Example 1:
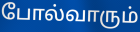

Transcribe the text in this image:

போல்வாரும்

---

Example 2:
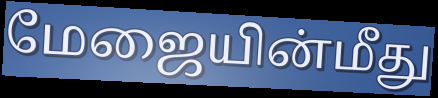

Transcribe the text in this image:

மேஜையின்மீது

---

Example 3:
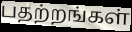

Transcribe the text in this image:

பதற்றங்கள்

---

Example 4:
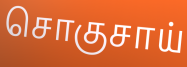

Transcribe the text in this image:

சொகுசாய்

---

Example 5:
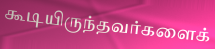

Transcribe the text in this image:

கூடியிருந்தவர்களைக்